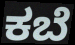
ಕಬೆ